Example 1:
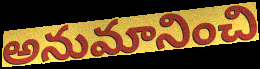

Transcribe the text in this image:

అనుమానించి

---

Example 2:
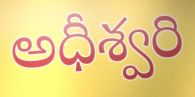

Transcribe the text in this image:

అధీశ్వరి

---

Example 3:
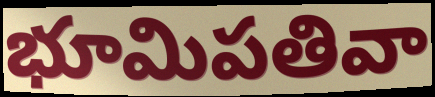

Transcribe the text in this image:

భూమిపతివా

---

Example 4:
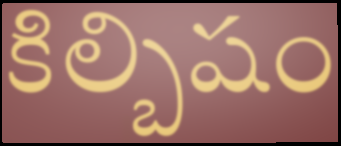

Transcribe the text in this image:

కిల్బిషం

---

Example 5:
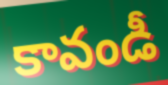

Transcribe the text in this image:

కావండీ